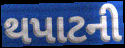
થપાટની